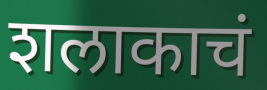
शलाकाचं